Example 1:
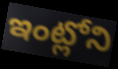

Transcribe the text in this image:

ఇంట్లోని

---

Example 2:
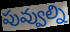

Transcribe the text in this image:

పువ్వుల్ని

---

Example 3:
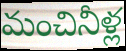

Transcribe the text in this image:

మంచినీళ్ల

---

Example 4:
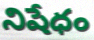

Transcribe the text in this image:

నిషేధం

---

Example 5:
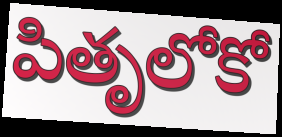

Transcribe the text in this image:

పితృలోకో